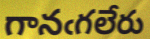
గానఁగలేరు